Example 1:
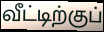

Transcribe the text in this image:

வீட்டிற்குப்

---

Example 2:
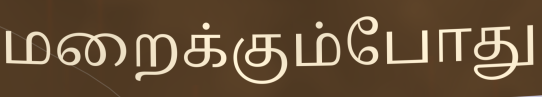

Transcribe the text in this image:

மறைக்கும்போது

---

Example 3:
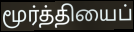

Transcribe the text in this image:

மூர்த்தியைப்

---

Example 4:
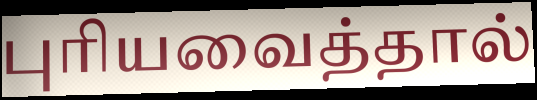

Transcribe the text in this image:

புரியவைத்தால்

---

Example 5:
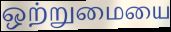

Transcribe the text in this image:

ஒற்றுமையை